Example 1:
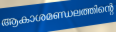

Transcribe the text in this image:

ആകാശമണ്ഡലത്തിന്റെ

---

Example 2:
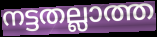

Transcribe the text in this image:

നട്ടതല്ലാത്ത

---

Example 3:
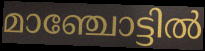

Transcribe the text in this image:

മാഞ്ചോട്ടിൽ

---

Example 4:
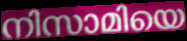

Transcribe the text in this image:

നിസാമിയെ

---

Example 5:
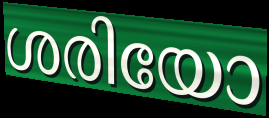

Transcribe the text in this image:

ശരിയോ